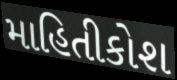
માહિતીકોશ